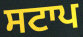
ਸਟਾਪ